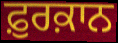
ਫ਼ੁਰਕ਼ਾਨ